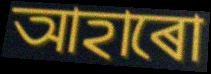
আহাৰো